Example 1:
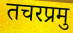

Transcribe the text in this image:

तचरप्रमु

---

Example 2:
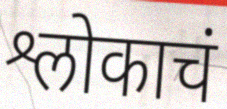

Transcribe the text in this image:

श्लोकाचं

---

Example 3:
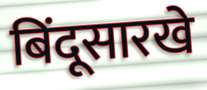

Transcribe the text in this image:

बिंदूसारखे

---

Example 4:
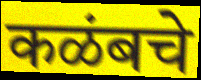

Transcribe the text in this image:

कळंबचे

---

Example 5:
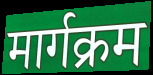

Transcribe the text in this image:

मार्गक्रम